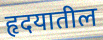
हृदयातील